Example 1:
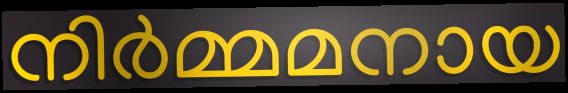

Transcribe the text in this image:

നിർമ്മമനായ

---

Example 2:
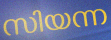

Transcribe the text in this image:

സിയന്ന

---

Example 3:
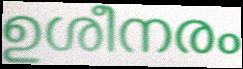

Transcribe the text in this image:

ഉശീനരം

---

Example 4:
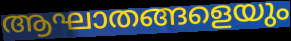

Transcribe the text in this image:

ആഘാതങ്ങളെയും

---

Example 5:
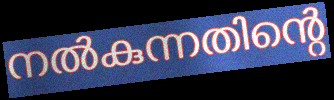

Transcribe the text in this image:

നൽകുന്നതിന്റെ